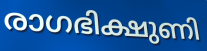
രാഗഭിക്ഷുണി